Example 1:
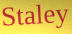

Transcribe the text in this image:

Staley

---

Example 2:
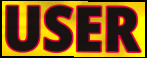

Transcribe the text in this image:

USER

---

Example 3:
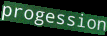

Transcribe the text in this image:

progession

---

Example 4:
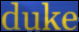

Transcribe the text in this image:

duke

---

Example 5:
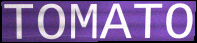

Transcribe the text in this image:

TOMATO